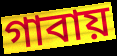
গাবায়